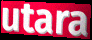
utara